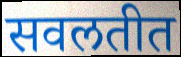
सवलतीत